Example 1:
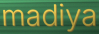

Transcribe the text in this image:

madiya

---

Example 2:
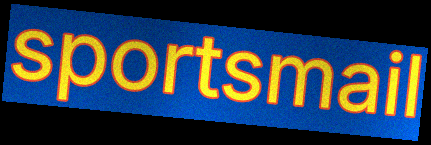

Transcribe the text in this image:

sportsmail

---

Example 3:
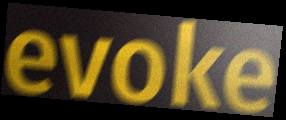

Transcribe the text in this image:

evoke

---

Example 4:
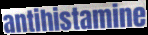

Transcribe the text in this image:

antihistamine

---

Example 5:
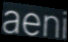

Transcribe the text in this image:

aeni